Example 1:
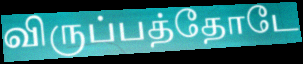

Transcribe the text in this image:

விருப்பத்தோடே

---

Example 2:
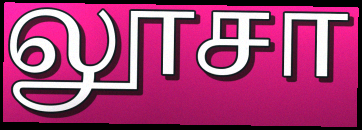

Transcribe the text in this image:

லூசா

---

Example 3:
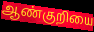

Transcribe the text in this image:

ஆண்குறியை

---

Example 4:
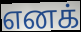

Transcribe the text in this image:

எனக்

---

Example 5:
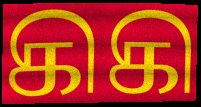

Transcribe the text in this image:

கிகி